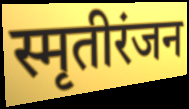
स्मृतीरंजन